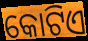
କୋଟିଏ